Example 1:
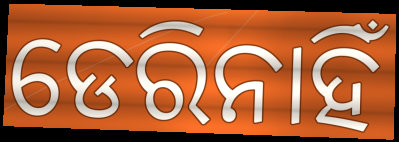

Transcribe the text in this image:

ଡେରିନାହିଁ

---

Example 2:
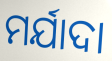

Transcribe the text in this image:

ମର୍ଯାଦା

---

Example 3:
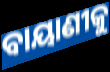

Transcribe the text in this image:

ବାୟାଣୀକୁ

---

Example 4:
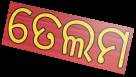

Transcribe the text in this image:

ତେଲମ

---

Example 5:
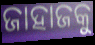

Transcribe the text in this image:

ଜାହାଜକୁ